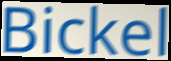
Bickel